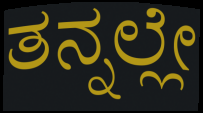
ತನ್ನಲ್ಲೇ